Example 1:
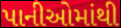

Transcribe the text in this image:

પાનીઓમાંથી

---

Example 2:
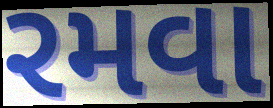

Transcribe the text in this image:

રમવા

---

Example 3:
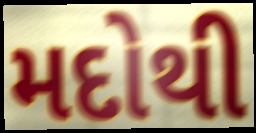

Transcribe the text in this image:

મદોથી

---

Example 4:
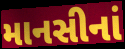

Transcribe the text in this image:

માનસીનાં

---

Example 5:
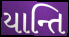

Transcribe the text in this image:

યાન્તિ